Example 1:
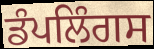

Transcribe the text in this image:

ਡੰਪਲਿੰਗਸ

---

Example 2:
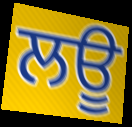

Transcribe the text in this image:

ਲਊ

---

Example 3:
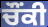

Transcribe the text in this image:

ਚੌਂਕੀ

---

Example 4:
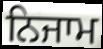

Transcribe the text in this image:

ਨਿਜਾਮ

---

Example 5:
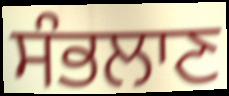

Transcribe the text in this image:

ਸੰਭਲਾਣ